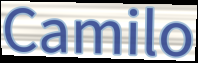
Camilo